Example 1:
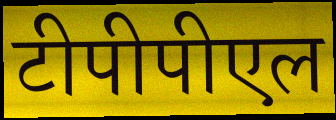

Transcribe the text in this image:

टीपीपीएल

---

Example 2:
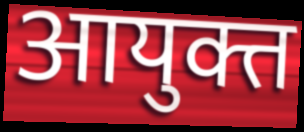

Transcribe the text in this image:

आयुक्त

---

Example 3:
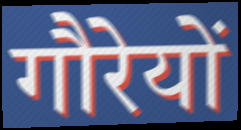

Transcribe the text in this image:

गौरेयों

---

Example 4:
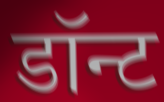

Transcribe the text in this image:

डॉन्ट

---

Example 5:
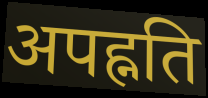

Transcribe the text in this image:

अपह्नति